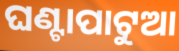
ଘଣ୍ଟାପାଟୁଆ